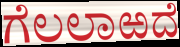
ಗೆಲಲಾಱದೆ